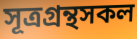
সূত্রগ্রন্থসকল